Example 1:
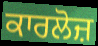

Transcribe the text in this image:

ਕਾਰਲੋਜ਼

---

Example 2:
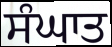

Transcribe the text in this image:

ਸੰਘਾਤ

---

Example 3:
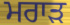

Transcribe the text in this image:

ਮਰਾੜ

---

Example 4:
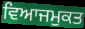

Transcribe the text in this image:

ਵਿਆਜਮੁਕਤ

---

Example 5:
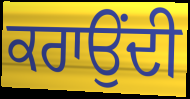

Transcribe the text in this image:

ਕਰਾਉਂਦੀ